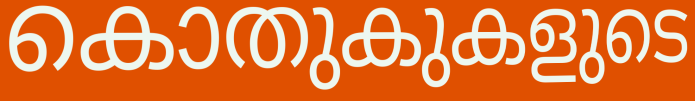
കൊതുകുകളുടെ